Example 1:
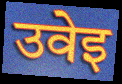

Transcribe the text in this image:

उवेइ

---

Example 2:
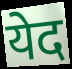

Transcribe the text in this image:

येद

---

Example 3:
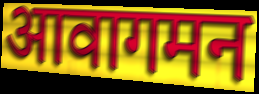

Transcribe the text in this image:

आवागमन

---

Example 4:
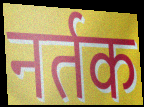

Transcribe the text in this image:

नर्तक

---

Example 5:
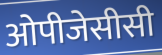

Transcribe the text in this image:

ओपीजेसीसी